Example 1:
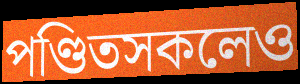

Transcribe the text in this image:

পণ্ডিতসকলেও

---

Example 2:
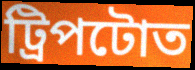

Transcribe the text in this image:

ট্ৰিপটোত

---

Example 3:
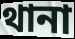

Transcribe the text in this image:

থানা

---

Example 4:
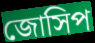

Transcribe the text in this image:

জোসিপ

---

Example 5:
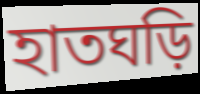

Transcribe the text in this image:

হাতঘড়ি